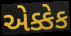
એક્કેક